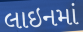
લાઇનમાં